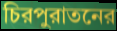
চিরপুরাতনের